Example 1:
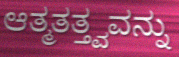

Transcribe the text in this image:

ಆತ್ಮತತ್ತ್ವವನ್ನು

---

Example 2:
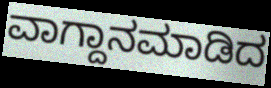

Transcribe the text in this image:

ವಾಗ್ದಾನಮಾಡಿದ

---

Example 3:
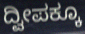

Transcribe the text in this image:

ದ್ವೀಪಕ್ಕೂ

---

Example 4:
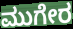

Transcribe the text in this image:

ಮುಗೇರ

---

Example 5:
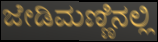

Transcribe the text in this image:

ಜೇಡಿಮಣ್ಣಿನಲ್ಲಿ